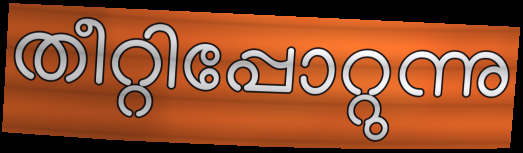
തീറ്റിപ്പോറ്റുന്നു